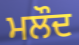
ਮਲੌਦ